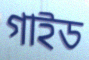
গাইড